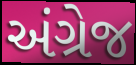
અંગ્રેજ